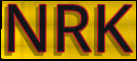
NRK